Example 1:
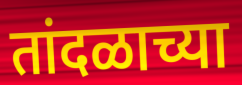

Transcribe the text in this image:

तांदळाच्या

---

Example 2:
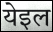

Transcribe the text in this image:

येइल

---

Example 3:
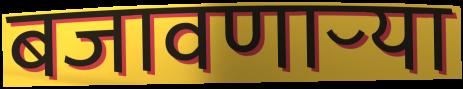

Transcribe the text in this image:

बजावणाऱ्या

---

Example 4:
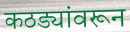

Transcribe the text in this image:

कठड्यांवरून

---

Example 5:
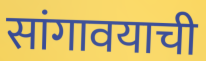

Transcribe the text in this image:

सांगावयाची